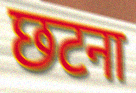
छटना